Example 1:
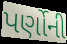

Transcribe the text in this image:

પર્ણોની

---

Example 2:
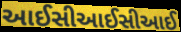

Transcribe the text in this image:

આઈસીઆઈસીઆઈ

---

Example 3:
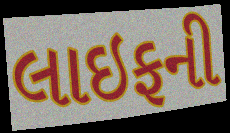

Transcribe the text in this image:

લાઇફની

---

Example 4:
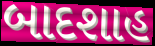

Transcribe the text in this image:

બાદશાહ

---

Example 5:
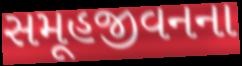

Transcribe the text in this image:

સમૂહજીવનના